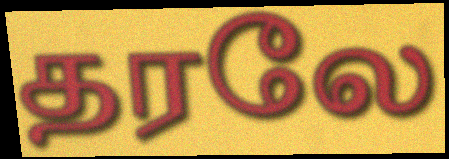
தரலே